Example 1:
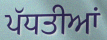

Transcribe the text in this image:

ਪੱਧਤੀਆਂ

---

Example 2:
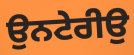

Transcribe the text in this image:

ਉਨਟੇਰੀਉ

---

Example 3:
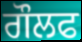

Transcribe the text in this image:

ਗੌਲਫ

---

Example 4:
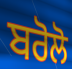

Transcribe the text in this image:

ਬਰੋਲੋ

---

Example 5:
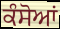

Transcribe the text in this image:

ਕੰਸੋਆਂ